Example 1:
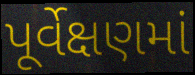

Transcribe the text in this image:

પૂર્વેક્ષણમાં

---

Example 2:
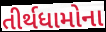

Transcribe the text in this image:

તીર્થધામોના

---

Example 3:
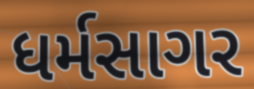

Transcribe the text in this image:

ધર્મસાગર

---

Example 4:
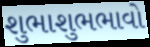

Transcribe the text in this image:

શુભાશુભભાવો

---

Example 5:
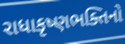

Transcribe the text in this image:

રાધાકૃષ્ણભક્તિનો